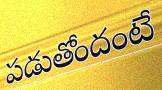
పడుతోందంటే